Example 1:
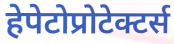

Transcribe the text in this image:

हेपेटोप्रोटेक्टर्स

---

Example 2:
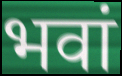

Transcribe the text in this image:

भवां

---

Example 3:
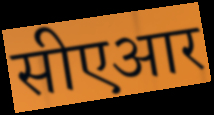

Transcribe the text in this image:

सीएआर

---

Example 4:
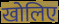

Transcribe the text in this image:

खोलिए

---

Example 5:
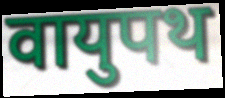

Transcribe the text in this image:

वायुपथ